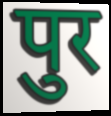
पुर